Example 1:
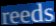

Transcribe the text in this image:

reeds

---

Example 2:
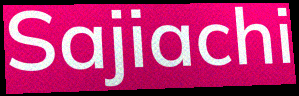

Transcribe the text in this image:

Sajiachi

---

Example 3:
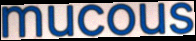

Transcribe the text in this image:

mucous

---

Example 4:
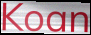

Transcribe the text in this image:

Koan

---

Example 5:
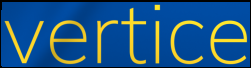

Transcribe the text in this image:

vertice